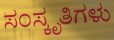
ಸಂಸ್ಕೃತಿಗಳು